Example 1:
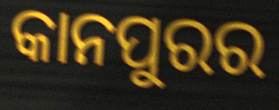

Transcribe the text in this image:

କାନପୁରର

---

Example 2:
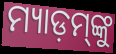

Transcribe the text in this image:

ମ୍ୟାଡ଼ମ୍‌ଙ୍କୁ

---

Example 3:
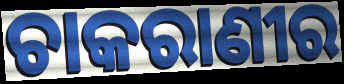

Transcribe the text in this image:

ଚାକରାଣୀର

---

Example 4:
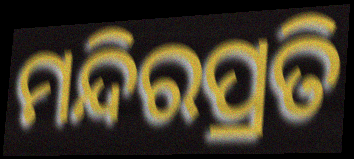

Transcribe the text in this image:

ମନ୍ଦିରପ୍ରତି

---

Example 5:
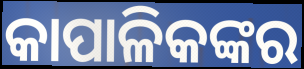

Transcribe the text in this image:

କାପାଳିକଙ୍କର